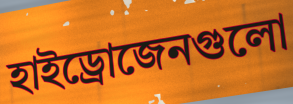
হাইড্রোজেনগুলো